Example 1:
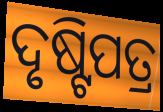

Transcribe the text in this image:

ଦୃଷ୍ଟିପତ୍ର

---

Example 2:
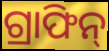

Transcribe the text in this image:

ଗ୍ରାଫିନ୍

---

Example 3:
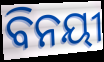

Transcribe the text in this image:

ବିନୟୀ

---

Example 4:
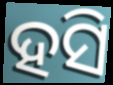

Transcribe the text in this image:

ହସି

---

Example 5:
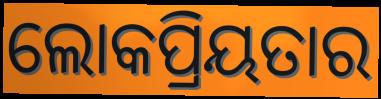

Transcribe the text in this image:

ଲୋକପ୍ରିୟତାର